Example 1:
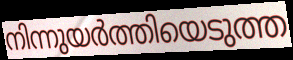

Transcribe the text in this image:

നിന്നുയർത്തിയെടുത്ത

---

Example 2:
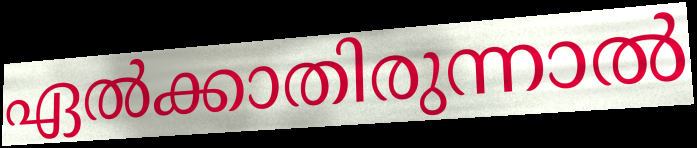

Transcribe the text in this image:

ഏൽക്കാതിരുന്നാൽ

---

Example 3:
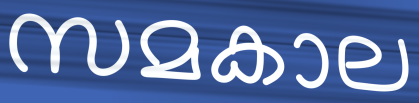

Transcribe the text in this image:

സമകാല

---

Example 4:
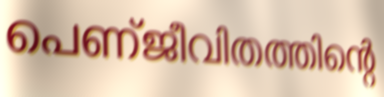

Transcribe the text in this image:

പെണ്ജീവിതത്തിന്റെ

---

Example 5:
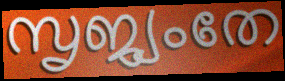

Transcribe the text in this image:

സൃജ്യംതേ